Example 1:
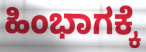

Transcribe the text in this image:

ಹಿಂಭಾಗಕ್ಕೆ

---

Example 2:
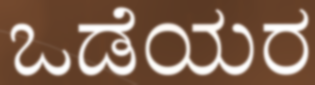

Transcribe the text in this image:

ಒಡೆಯರ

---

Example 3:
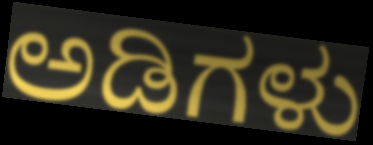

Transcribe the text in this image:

ಅಡಿಗಳು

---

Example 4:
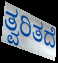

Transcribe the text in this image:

ತ್ವರಿತದೆ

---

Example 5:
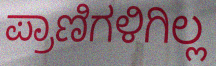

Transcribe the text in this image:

ಪ್ರಾಣಿಗಳಿಗಿಲ್ಲ